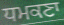
ਧਮਕਣਾ